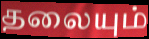
தலையும்